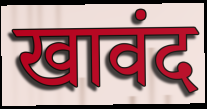
खावंद